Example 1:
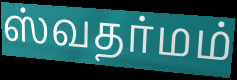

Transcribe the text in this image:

ஸ்வதர்மம்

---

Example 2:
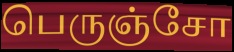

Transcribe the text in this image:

பெருஞ்சோ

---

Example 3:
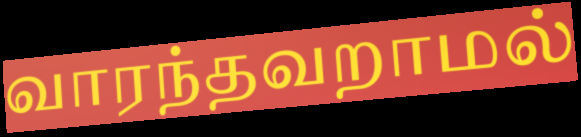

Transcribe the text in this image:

வாரந்தவறாமல்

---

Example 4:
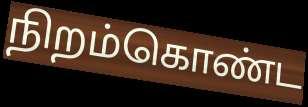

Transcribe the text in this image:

நிறம்கொண்ட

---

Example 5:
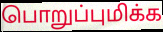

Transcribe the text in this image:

பொறுப்புமிக்க